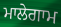
ਮਾਲੇਗਾਮ